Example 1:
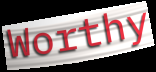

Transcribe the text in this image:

Worthy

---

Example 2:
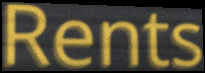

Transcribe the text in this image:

Rents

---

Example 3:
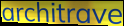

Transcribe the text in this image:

architrave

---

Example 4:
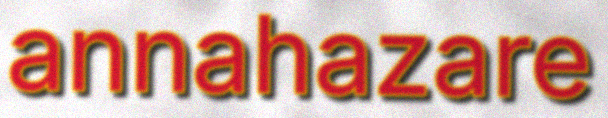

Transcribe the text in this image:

annahazare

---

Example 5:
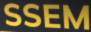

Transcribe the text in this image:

SSEM